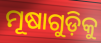
ମୂଷାଗୁଡ଼ିକୁ